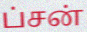
ப்சன்